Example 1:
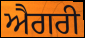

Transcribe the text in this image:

ਐਗਰੀ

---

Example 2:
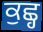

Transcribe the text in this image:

ਕੁਛ੍ਹ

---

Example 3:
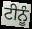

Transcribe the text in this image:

ਟੀਨੂੰ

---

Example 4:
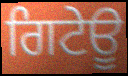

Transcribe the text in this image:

ਗਿਟੇਊ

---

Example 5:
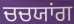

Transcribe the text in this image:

ਚਚਯਾਂਗ